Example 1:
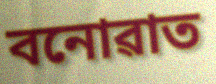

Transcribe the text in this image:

বনোৱাত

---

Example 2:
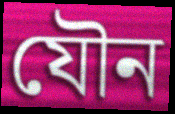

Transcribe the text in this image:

যৌন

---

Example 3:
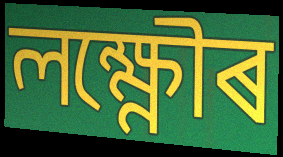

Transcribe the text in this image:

লক্ষ্ণৌৰ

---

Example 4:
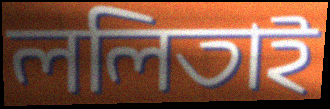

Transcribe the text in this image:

ললিতাই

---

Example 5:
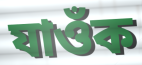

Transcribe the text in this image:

যাওঁক